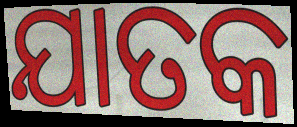
ଯାତକ